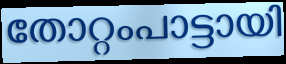
തോറ്റംപാട്ടായി